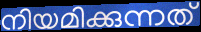
നിയമിക്കുന്നത്